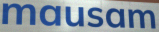
mausam